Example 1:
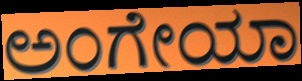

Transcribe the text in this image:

ಅಂಗೇಯಾ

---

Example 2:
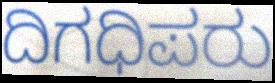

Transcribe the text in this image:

ದಿಗಧಿಪರು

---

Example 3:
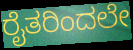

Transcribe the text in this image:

ರೈತರಿಂದಲೇ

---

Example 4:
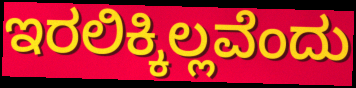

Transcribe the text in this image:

ಇರಲಿಕ್ಕಿಲ್ಲವೆಂದು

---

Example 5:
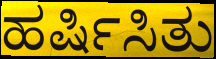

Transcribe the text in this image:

ಹರ್ಷಿಸಿತು